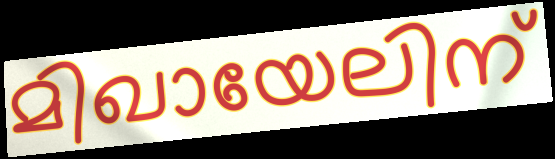
മിഖായേലിന്